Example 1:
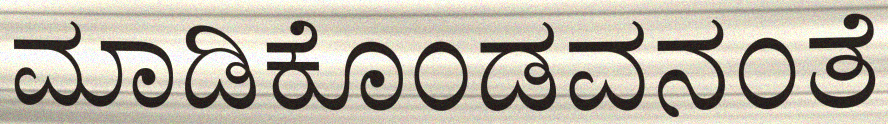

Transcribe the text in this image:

ಮಾಡಿಕೊಂಡವನಂತೆ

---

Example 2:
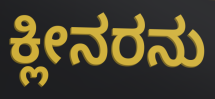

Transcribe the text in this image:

ಕ್ಲೀನರನು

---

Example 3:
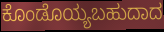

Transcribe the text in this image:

ಕೊಂಡೊಯ್ಯಬಹುದಾದ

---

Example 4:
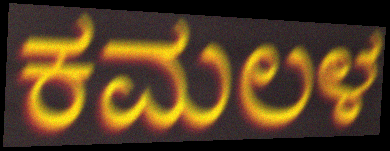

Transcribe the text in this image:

ಕಮಲಳ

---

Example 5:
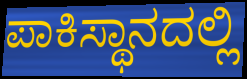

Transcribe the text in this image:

ಪಾಕಿಸ್ಥಾನದಲ್ಲಿ